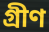
গ্ৰীণ